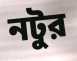
নটুর